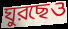
ঘুরছেও